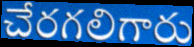
చేరగలిగారు